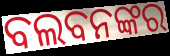
ବଲବନଙ୍କର